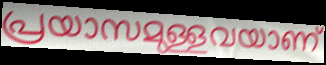
പ്രയാസമുള്ളവയാണ്